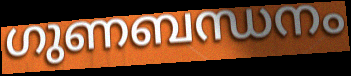
ഗുണബന്ധനം